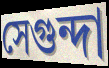
সেগুন্দা